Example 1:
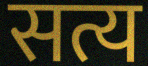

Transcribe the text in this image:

सत्य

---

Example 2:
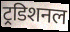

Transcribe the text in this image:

ट्रडिशनल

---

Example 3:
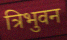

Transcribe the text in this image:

त्रिभुवन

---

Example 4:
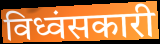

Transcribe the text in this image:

विध्वंसकारी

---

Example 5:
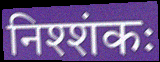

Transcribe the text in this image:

निश्शंकः